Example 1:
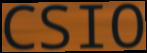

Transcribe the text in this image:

CSIO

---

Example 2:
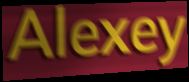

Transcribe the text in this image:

Alexey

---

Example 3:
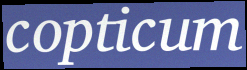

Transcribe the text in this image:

copticum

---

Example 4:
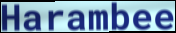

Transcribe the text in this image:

Harambee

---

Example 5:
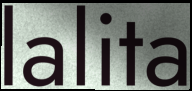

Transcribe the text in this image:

lalita